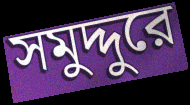
সমুদ্দুরে